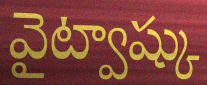
వైట్వాష్కు